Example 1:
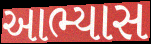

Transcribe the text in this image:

આભ્યાસ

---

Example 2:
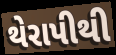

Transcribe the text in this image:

થેરાપીથી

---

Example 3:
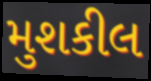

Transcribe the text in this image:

મુશકીલ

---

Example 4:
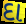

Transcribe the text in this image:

દા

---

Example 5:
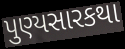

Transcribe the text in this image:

પુણ્યસારકથા